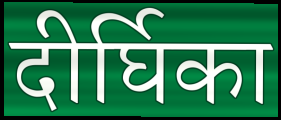
दीर्घिका